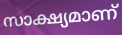
സാക്ഷ്യമാണ്